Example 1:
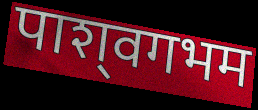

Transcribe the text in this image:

पाश्वगभम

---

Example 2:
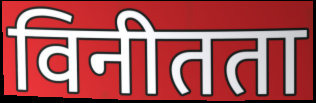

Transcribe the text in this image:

विनीतता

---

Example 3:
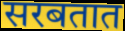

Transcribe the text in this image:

सरबतात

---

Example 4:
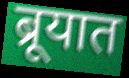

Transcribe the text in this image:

ब्रूयात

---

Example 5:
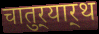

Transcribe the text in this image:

चातुर्यार्थ